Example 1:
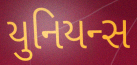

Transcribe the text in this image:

યુનિયન્સ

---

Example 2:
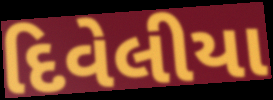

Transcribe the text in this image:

દિવેલીયા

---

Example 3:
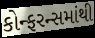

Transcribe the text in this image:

કોન્ફરન્સમાંથી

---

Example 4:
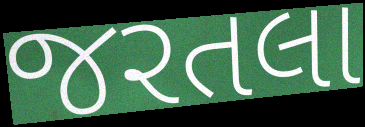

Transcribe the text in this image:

જરતલા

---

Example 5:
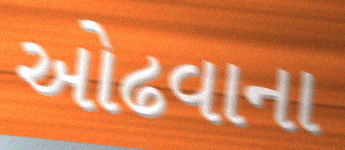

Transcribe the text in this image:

ઓઢવાના